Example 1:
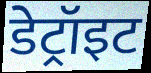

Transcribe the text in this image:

डेट्रॉइट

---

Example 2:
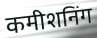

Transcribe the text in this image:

कमीशनिंग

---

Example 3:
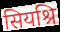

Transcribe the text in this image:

सियश्रि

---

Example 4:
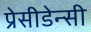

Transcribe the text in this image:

प्रेसीडेन्सी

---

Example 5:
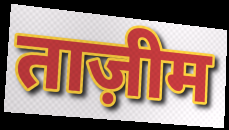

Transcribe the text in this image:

ताज़ीम